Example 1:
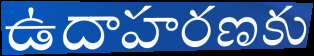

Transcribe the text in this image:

ఉదాహరణకు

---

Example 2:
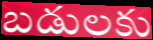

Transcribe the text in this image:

బడులకు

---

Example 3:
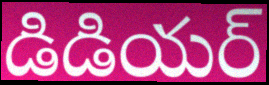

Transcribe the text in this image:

డిడియర్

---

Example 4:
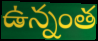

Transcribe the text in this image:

ఉన్నంత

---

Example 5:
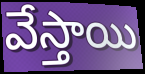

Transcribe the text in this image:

వేస్తాయి